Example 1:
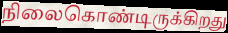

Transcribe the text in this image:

நிலைகொண்டிருக்கிறது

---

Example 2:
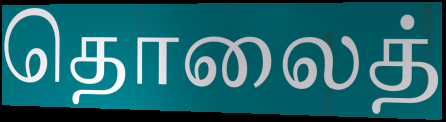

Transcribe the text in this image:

தொலைத்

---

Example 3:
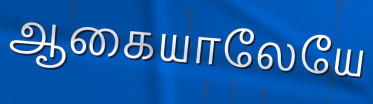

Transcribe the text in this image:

ஆகையாலேயே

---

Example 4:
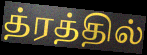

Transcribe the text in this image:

த்ரத்தில்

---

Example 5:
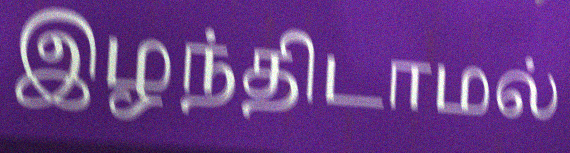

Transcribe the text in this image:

இழந்திடாமல்